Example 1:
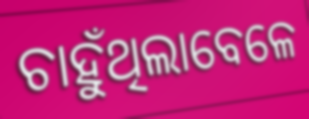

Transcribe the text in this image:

ଚାହୁଁଥିଲାବେଳେ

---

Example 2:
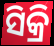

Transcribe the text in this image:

ସିକ୍ରି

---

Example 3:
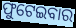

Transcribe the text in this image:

ଫୁଟେଇବାର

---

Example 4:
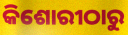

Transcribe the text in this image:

କିଶୋରୀଠାରୁ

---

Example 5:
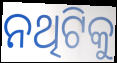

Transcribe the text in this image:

ନଥିଟିକୁ